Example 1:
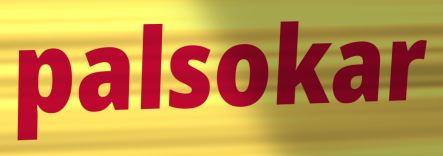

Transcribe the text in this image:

palsokar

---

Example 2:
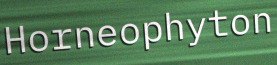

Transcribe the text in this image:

Horneophyton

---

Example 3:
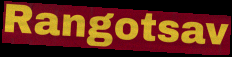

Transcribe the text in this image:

Rangotsav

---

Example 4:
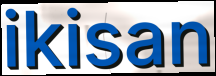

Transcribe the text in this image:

ikisan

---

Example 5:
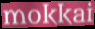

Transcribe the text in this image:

mokkai